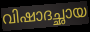
വിഷാദച്ഛായ